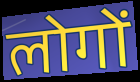
लोगों